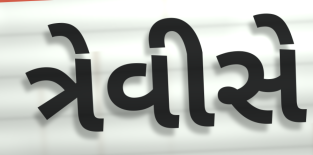
ત્રેવીસે